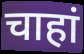
चाहां